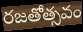
రజతోత్సవం